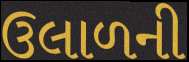
ઉલાળની